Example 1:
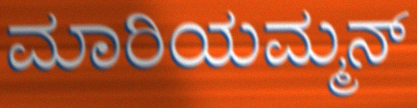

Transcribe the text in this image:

ಮಾರಿಯಮ್ಮನ್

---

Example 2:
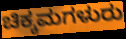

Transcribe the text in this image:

ಚಿಕ್ಕಮಗಳುರು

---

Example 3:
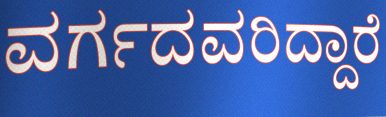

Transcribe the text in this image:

ವರ್ಗದವರಿದ್ದಾರೆ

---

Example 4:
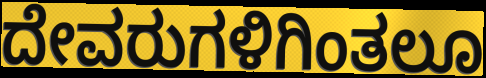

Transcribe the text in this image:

ದೇವರುಗಳಿಗಿಂತಲೂ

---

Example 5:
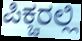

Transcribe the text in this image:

ಪಿಕ್ಚರಲ್ಲಿ